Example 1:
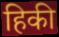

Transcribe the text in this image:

हिकी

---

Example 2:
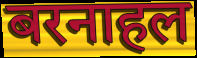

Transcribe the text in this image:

बरनाहल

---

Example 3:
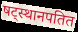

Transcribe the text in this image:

षट्स्थानपतित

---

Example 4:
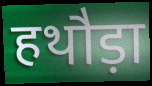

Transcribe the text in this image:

हथौड़ा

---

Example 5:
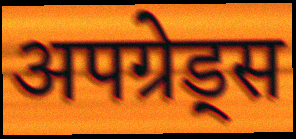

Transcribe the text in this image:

अपग्रेड्स